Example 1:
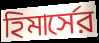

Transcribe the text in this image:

হিমার্সের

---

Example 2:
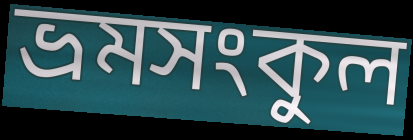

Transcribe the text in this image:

ভ্রমসংকুল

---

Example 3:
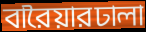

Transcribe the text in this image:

বারৈয়ারঢালা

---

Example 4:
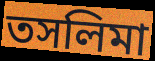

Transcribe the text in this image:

তসলিমা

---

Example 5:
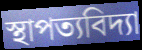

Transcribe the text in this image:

স্থাপত্যবিদ্যা